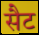
सैट